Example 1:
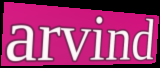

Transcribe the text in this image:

arvind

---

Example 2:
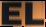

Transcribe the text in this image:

EL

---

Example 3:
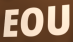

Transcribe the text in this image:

EOU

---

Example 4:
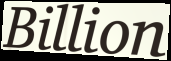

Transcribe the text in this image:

Billion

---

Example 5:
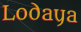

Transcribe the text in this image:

Lodaya